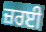
ਜ਼ਰਈ